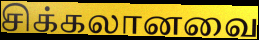
சிக்கலானவை